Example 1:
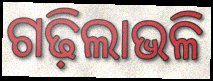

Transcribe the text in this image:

ଗଢ଼ିଲାଭଳି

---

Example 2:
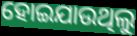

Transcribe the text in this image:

ହୋଇଯାଉଥିଲୁ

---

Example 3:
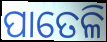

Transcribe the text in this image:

ପାତେଳି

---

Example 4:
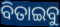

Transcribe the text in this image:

ବିତାଇବୁ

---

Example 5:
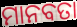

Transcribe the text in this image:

ମାନବତା